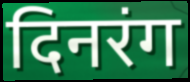
दिनरंग